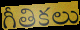
గీతికలు